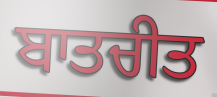
ਬਾਤਚੀਤ